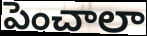
పెంచాలా